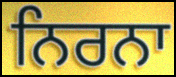
ਨਿਰਨਾ